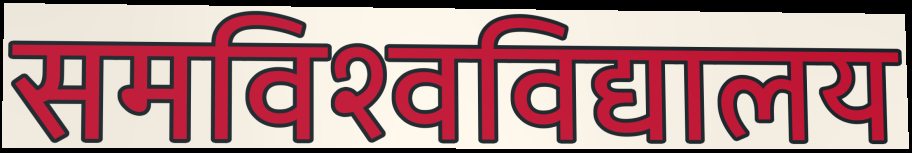
समविश्वविद्यालय